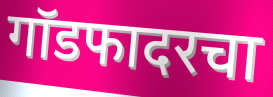
गॉडफादरचा